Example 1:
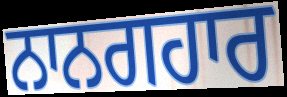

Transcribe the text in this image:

ਨਾਨਗਹਾਰ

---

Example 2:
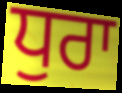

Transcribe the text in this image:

ਧੁਰਾ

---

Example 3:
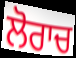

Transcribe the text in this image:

ਲੋਰਾਚ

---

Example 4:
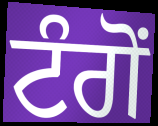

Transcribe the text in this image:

ਟੰਗੋਂ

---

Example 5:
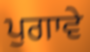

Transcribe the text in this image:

ਪੁਗਾਵੇ